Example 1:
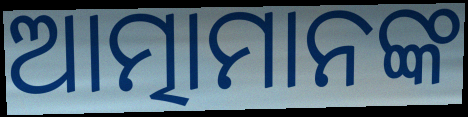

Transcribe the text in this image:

ଆତ୍ମାମାନଙ୍କ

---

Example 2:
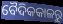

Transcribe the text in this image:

ବୈଦିକକାଳରୁ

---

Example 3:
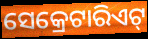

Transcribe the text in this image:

ସେକ୍ରେଟାରିଏଟ୍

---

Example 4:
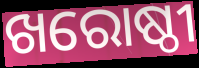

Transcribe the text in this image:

ଖରୋଷ୍ଠୀ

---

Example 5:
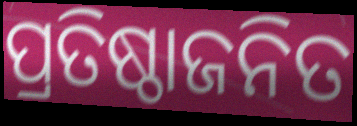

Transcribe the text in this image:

ପ୍ରତିଷ୍ଠାଜନିତ